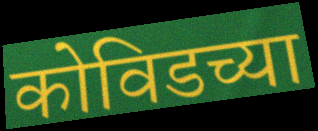
कोविडच्या